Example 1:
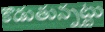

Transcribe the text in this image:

కొడుతున్నట్టు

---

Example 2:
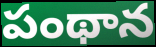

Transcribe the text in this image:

పంథాన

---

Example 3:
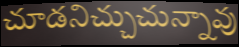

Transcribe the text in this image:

చూడనిచ్చుచున్నావు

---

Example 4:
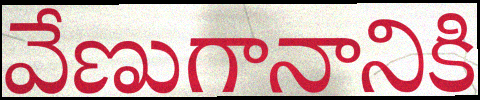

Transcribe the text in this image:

వేణుగానానికి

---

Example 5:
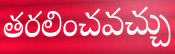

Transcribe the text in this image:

తరలించవచ్చు